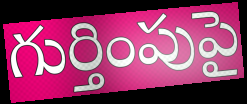
గుర్తింపుపై